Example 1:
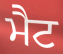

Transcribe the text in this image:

ਮੈਟ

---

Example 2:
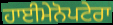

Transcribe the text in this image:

ਹਾਈਮੇਨੋਪਟੇਰਾ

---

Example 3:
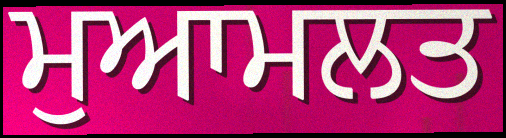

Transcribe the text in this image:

ਮੁਆਮਲਤ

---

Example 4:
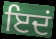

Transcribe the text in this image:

ਇਦਂ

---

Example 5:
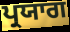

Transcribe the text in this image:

ਪ੍ਰਯਾਗ